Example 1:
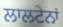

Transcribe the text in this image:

ਲਾਲਟੇਨਾਂ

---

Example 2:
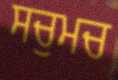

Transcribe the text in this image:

ਸਚੁਮਚ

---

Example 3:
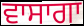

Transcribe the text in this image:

ਵਾਸਾਗਾ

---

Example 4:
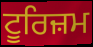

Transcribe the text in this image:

ਟੂਰਿਜ਼ਮ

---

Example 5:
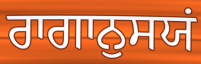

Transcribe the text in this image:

ਰਾਗਾਨੁਸਯਂ